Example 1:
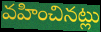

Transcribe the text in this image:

వహించినట్లు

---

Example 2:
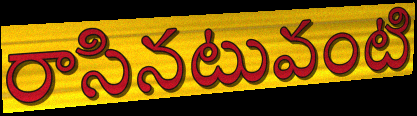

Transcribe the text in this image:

రాసినటువంటి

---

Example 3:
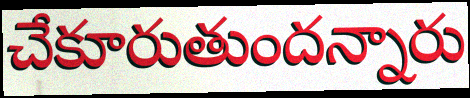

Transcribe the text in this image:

చేకూరుతుందన్నారు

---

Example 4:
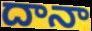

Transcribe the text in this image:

దానా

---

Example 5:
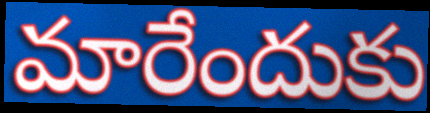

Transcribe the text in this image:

మారేందుకు